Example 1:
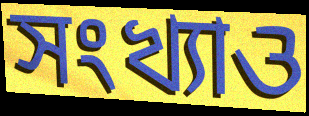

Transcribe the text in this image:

সংখ্যাও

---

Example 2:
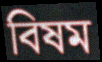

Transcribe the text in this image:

বিষম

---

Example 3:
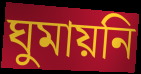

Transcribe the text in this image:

ঘুমায়নি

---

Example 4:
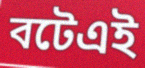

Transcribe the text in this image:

বটেএই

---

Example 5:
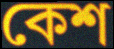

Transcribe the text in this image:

কেশ